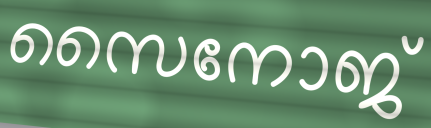
സൈനോജ്